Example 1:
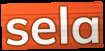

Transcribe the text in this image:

sela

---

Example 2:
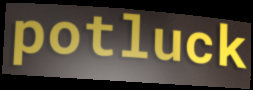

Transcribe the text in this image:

potluck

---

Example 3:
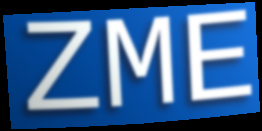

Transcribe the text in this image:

ZME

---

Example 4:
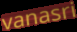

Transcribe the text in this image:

vanasri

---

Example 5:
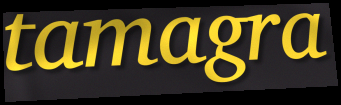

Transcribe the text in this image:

tamagra